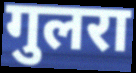
गुलरा